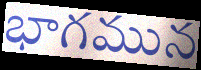
భాగమున